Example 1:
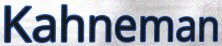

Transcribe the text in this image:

Kahneman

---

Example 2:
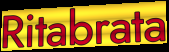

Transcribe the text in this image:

Ritabrata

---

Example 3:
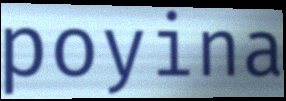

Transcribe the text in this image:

poyina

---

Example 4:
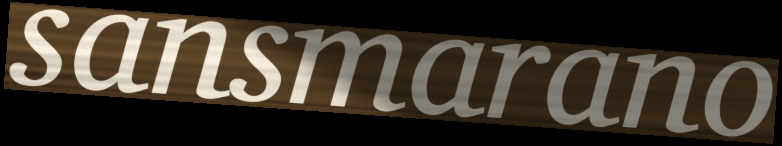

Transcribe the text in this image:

sansmarano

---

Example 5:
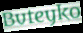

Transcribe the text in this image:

Buteyko